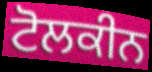
ਟੋਲਕੀਨ